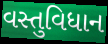
વસ્તુવિધાન